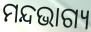
ମନ୍ଦଭାଗ୍ୟ